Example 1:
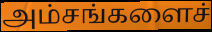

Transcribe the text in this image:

அம்சங்களைச்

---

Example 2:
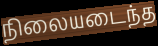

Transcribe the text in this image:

நிலையடைந்த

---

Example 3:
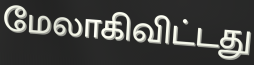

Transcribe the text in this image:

மேலாகிவிட்டது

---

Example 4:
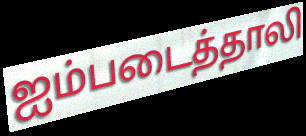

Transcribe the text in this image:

ஐம்படைத்தாலி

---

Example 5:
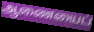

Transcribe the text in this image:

ஆணையைப்